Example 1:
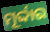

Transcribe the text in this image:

ମୂର୍ଦ୍ଦାର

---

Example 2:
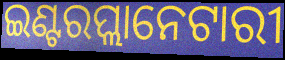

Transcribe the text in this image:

ଇଣ୍ଟରପ୍ଲାନେଟାରୀ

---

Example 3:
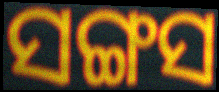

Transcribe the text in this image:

ସଙ୍ଗସ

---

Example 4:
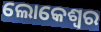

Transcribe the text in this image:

ଲୋକେଶ୍ୱର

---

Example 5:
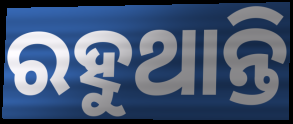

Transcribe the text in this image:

ରହୁଥାନ୍ତି